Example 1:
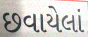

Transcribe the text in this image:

છવાયેલાં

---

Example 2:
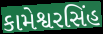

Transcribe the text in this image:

કામેશ્વરસિંહ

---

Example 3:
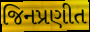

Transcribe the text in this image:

જિનપ્રણીત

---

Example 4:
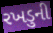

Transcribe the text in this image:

રખડુની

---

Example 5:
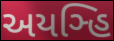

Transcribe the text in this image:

અયઞ્હિ